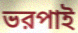
ভরপাই